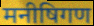
मनीषिगण